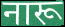
नारू